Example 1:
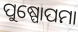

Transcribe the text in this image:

ପୁଷ୍ପୋପମା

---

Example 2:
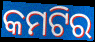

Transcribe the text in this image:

କମଟିର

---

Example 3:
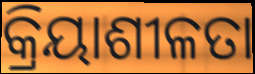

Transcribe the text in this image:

କ୍ରିୟାଶୀଳତା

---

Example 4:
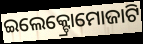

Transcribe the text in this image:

ଇଲେକ୍ଟ୍ରୋମୋଜାଟି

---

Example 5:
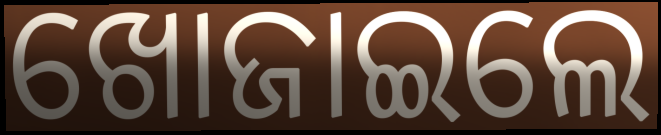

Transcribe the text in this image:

ଖୋଜାଇଲେ